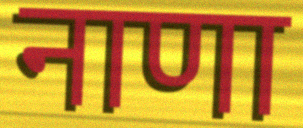
नाणा